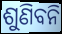
ଶୁଣିବନି